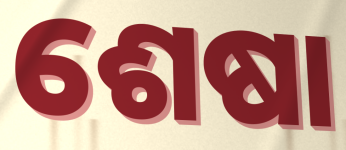
ଶେଷା